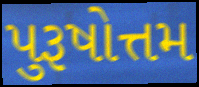
પુરૂષોત્તમ